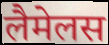
लैमेलस